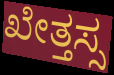
ಖೇತ್ತಸ್ಸ